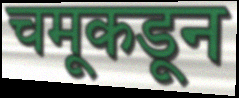
चमूकडून